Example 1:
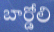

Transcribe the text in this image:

బార్డోలి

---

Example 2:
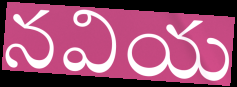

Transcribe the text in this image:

నవియ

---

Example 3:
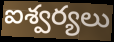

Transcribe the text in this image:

ఐశ్వర్యలు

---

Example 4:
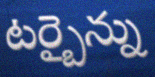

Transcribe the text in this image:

టర్బైన్ను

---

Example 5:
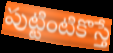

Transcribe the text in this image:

పుట్టింటికొస్తే